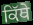
ਕਿੱਥੇ